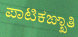
ಪಾಟಿಕಙ್ಖಾತಿ